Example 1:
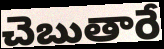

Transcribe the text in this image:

చెబుతారే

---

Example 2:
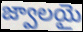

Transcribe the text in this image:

జ్వాలయై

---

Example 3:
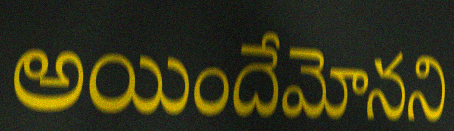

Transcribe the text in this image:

అయిందేమోనని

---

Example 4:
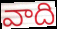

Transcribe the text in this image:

వాది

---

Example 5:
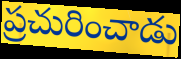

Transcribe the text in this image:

ప్రచురించాడు